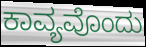
ಕಾವ್ಯವೊಂದು